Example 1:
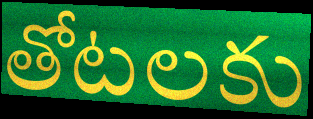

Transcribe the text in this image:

తోటలకు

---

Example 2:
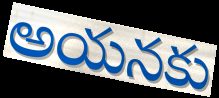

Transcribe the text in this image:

అయనకు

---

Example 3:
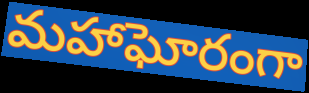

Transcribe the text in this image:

మహాఘోరంగా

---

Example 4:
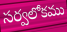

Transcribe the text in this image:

సర్వలోకము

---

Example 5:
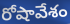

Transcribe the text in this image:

రోషావేశం